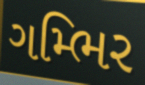
ગમ્ભિર